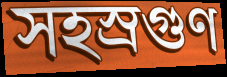
সহস্রগুণ